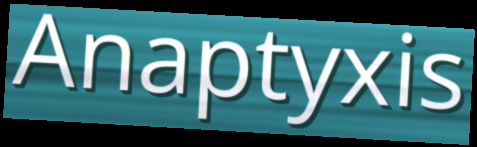
Anaptyxis